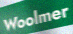
Woolmer